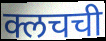
क्लचची